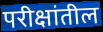
परीक्षांतील